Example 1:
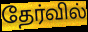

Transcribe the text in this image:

தேர்வில்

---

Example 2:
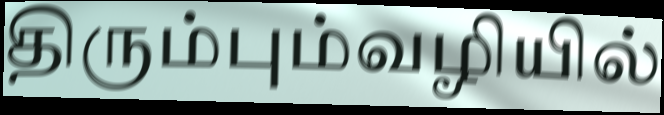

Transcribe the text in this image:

திரும்பும்வழியில்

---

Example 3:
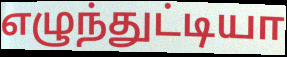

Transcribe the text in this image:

எழுந்துட்டியா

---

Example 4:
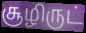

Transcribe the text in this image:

சூழிருட்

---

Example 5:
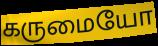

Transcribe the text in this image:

கருமையோ